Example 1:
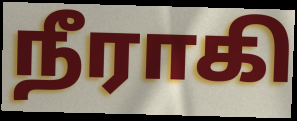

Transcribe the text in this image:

நீராகி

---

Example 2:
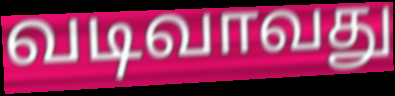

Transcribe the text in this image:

வடிவாவது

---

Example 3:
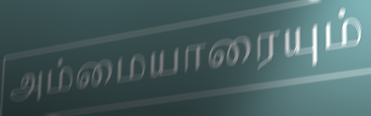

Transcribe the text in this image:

அம்மையாரையும்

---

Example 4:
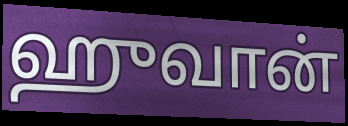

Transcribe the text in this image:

ஹுவான்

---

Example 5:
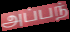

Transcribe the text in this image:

அப்பந்